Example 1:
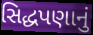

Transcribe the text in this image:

સિદ્ધપણાનું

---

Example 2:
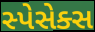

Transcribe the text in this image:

સ્પેસેક્સ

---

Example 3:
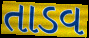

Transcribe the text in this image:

તાડવ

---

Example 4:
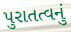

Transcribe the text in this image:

પુરાતત્વનું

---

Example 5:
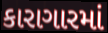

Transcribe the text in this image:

કારાગારમાં